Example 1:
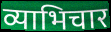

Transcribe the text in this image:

व्याभिचार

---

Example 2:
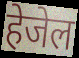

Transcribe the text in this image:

हेजेल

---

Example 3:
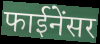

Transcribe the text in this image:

फाईनेंसर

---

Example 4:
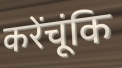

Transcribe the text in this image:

करेंचूंकि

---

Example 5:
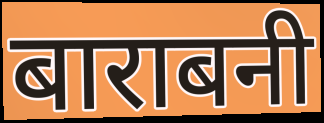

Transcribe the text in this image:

बाराबनी